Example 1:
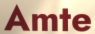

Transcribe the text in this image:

Amte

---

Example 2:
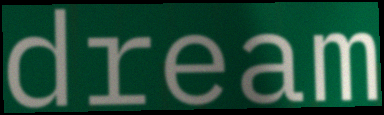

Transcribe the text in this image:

dream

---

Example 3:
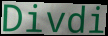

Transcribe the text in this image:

Divdi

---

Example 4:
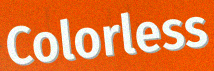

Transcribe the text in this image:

Colorless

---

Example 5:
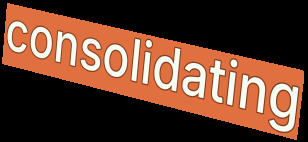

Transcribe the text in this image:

consolidating